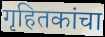
गृहितकांचा